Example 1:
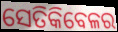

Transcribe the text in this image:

ସେତିକିବେଳର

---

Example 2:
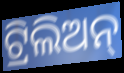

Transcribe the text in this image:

ଟ୍ରିଲିଅନ୍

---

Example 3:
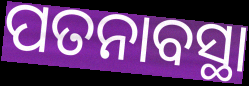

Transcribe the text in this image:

ପତନାବସ୍ଥା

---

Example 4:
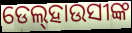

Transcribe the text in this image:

ଡେଲ୍‌ହାଉସୀଙ୍କ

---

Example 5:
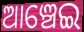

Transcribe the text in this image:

ଆଞ୍ଚେଇ